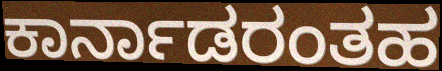
ಕಾರ್ನಾಡರಂತಹ